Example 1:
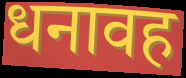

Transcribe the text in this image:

धनावह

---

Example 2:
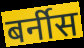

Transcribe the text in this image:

बर्नीस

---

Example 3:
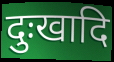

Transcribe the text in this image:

दुःखादि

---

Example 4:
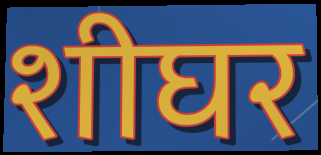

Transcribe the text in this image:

शीघर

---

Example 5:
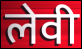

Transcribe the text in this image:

लेवी